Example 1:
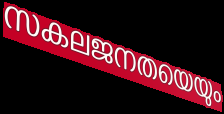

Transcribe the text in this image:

സകലജനതയെയും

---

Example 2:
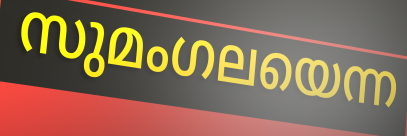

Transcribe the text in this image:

സുമംഗലയെന്ന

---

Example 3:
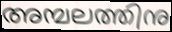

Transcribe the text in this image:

അമ്പലത്തിനു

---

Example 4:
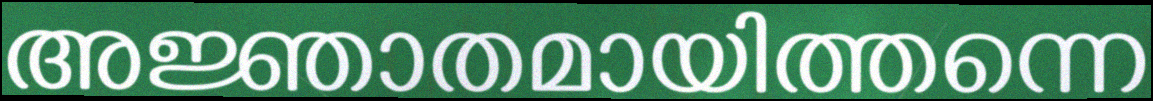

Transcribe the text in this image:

അജ്ഞാതമായിത്തന്നെ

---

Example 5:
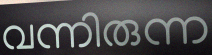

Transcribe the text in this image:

വന്നിരുന്ന